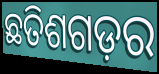
ଛତିଶଗଡ଼ର